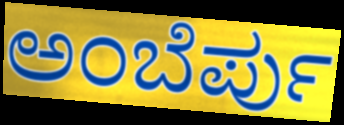
ಅಂಬೆರ್ಪು